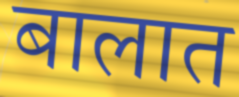
बालात